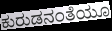
ಕುರುಡನಂತೆಯೂ